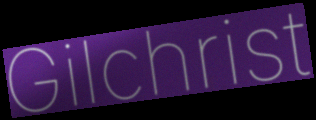
Gilchrist